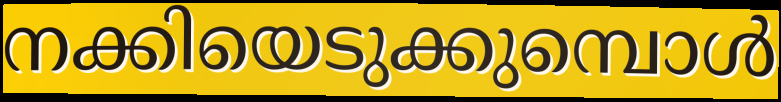
നക്കിയെടുക്കുമ്പൊൾ